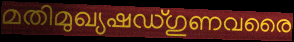
മതിമുഖ്യഷഡ്ഗുണവരൈ